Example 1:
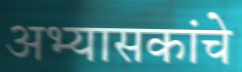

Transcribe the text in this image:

अभ्यासकांचे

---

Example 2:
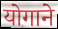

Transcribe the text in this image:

योगाने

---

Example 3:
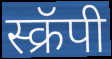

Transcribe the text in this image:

स्क्रॅपी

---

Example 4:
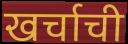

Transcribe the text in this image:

खर्चाची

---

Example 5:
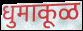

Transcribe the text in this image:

धुमाकूळ